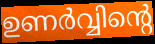
ഉണർവ്വിന്റെ